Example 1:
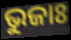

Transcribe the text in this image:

ଭୁଜାଃ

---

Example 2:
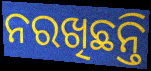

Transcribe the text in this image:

ନରଖିଛନ୍ତି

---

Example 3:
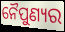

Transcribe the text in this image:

ନୈପୁଣ୍ୟର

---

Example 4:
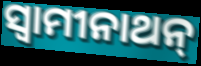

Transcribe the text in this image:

ସ୍ବାମୀନାଥନ୍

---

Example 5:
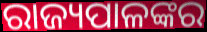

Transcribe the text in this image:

ରାଜ୍ୟପାଳଙ୍କର